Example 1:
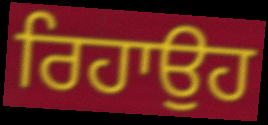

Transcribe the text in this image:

ਰਿਹਾਉਹ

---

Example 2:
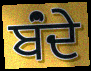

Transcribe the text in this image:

ਬਂੰਦੇ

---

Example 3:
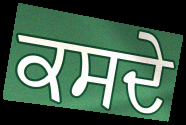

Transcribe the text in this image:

ਕਸਦੇ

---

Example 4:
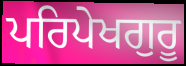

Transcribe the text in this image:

ਪਰਿਪੇਖਗੁਰੂ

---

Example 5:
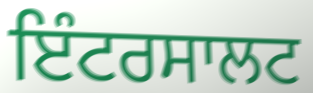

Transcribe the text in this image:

ਇੰਟਰਸਾਲਟ